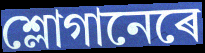
শ্লোগানেৰে